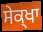
ਸੇਕ੍ਖਾ